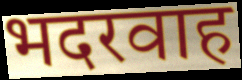
भदरवाह